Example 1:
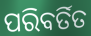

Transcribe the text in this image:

ପରିବର୍ତିତ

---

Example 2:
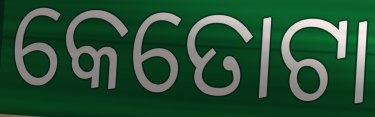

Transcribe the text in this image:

କେତୋଟା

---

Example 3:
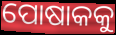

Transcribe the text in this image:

ପୋଷାକକୁ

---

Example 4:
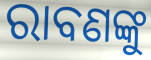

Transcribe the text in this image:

ରାବଣଙ୍କୁ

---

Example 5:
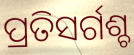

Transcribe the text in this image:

ପ୍ରତିସର୍ଗଶ୍ଚ